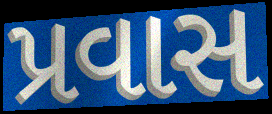
પ્રવાસ